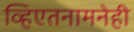
व्हिएतनामनेही